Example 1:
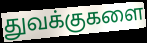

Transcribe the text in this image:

துவக்குகளை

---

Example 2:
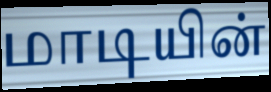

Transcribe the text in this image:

மாடியின்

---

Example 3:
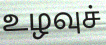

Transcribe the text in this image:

உழவுச்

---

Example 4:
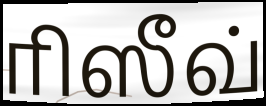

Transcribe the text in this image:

ரிஸீவ்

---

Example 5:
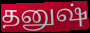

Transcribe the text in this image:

தனுஷ்